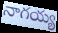
నాగయ్య